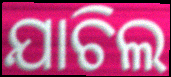
ଯାଚିଲ